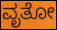
ವೃತೋ